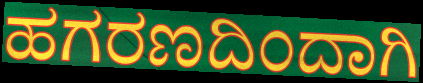
ಹಗರಣದಿಂದಾಗಿ